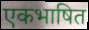
एकभाषित